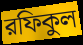
রফিকুল